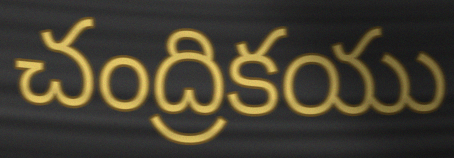
చంద్రికయు